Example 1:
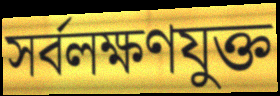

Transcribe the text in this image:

সর্বলক্ষণযুক্ত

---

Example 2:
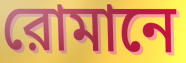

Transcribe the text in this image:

রোমানে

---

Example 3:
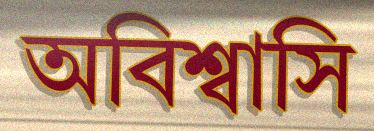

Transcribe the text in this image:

অবিশ্বাসি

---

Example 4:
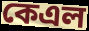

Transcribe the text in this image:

কেএল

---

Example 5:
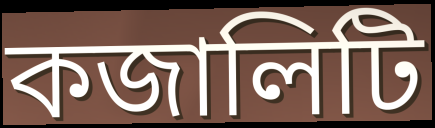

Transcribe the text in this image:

কজালিটি